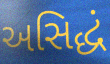
અસિદ્ધં